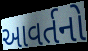
આવર્તનો